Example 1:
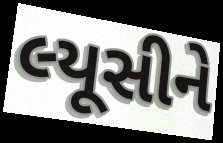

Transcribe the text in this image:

લ્યૂસીને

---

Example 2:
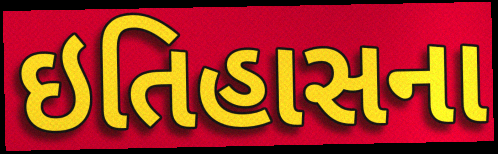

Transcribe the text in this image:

ઇતિહાસના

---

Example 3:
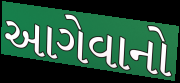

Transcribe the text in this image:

આગેવાનો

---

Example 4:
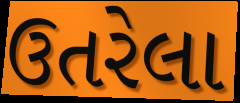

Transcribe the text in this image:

ઉતરેલા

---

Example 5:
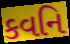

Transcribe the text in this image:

કવનિ